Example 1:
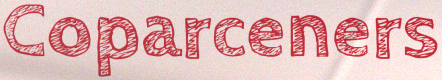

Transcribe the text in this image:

Coparceners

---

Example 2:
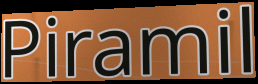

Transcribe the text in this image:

Piramil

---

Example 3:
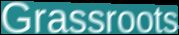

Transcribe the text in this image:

Grassroots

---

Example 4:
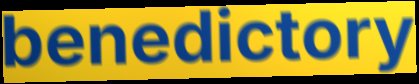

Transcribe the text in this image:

benedictory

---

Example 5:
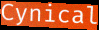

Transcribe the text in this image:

Cynical